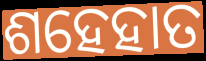
ଶହେହାତ